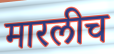
मारलीच